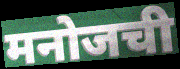
मनोजची